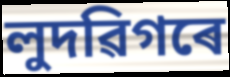
লুদৱিগৰে